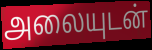
அலையுடன்